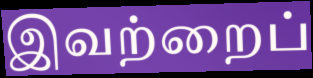
இவற்றைப்